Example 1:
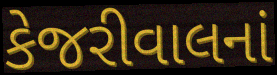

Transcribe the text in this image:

કેજરીવાલનાં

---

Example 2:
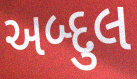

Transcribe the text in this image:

અબ્દુલ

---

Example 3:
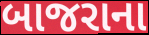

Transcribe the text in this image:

બાજરાના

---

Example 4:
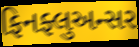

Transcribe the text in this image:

ફિનફ્લુઅન્સર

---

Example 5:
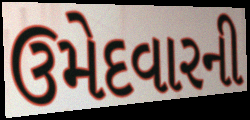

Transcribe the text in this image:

ઉમેદવારની